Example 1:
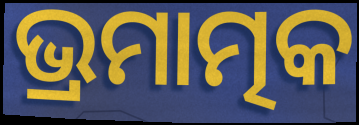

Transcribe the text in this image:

ଭ୍ରମାତ୍ମକ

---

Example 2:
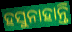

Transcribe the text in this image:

ହସୁନାହାନ୍ତି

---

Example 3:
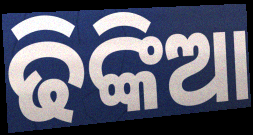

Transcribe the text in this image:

ଢିଙ୍କିଆ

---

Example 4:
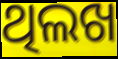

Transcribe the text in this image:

ଥିଲଖ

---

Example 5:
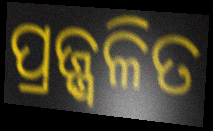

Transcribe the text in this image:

ପ୍ରଜ୍ଜ୍ବଳିତ